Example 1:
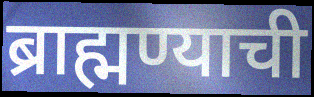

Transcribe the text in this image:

ब्राह्मण्याची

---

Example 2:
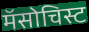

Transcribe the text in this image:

मॅसोचिस्ट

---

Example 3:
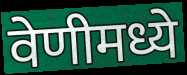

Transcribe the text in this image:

वेणीमध्ये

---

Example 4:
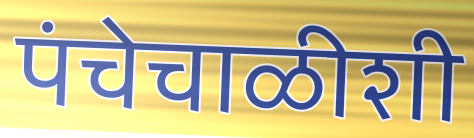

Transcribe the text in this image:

पंचेचाळीशी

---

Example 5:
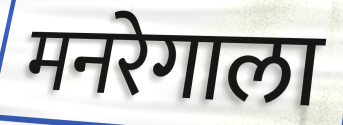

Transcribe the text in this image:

मनरेगाला